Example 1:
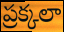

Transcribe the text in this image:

ప్రక్కలా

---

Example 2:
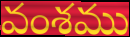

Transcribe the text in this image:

వంశము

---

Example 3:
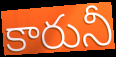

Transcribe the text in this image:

కారునీ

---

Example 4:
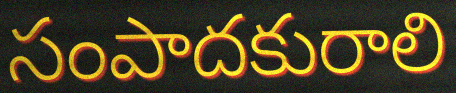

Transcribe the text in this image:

సంపాదకురాలి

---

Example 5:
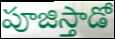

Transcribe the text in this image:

పూజిస్తాడో